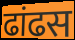
ढांढस